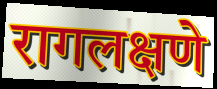
रागलक्षणे